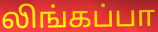
லிங்கப்பா